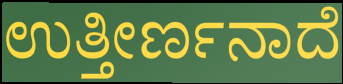
ಉತ್ತೀರ್ಣನಾದೆ